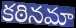
కఠినమా